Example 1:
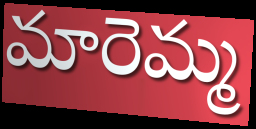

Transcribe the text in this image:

మారెమ్మ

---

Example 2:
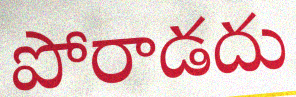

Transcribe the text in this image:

పోరాడదు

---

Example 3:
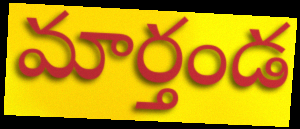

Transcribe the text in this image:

మార్తండ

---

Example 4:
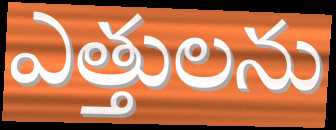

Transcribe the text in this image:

ఎత్తులను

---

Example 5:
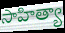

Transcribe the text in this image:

సాహిత్యా